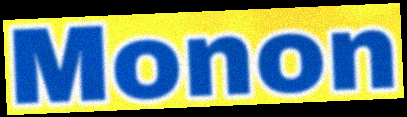
Monon